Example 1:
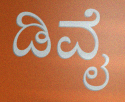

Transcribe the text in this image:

ಡಿವೈ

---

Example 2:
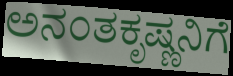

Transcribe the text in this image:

ಅನಂತಕೃಷ್ಣನಿಗೆ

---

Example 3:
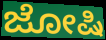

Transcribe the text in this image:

ಜೋಷಿ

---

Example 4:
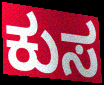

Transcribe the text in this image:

ಕುಸ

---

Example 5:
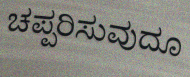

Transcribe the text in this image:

ಚಪ್ಪರಿಸುವುದೂ